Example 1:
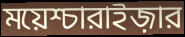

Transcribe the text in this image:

ময়েশ্চারাইজ়ার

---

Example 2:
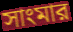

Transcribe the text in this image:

সাংমার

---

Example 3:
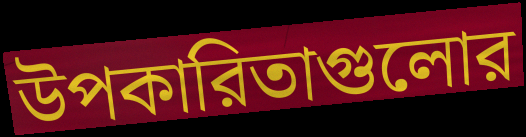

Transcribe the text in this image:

উপকারিতাগুলোর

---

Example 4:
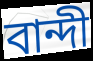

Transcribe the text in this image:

বান্দী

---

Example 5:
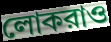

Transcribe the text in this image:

লোকরাও